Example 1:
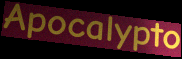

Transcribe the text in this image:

Apocalypto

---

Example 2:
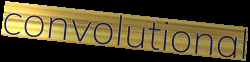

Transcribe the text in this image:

convolutional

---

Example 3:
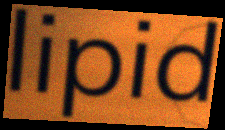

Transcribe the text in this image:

lipid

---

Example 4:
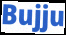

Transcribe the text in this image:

Bujju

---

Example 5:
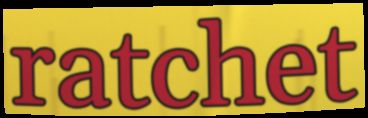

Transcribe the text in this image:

ratchet